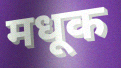
मधूक